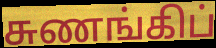
சுணங்கிப்